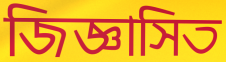
জিজ্ঞাসিত